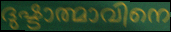
ദുഷ്ടാത്മാവിനെ